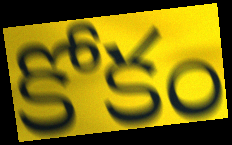
కోకం